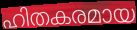
ഹിതകരമായ